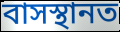
বাসস্থানত